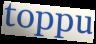
toppu